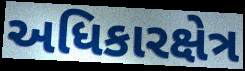
અધિકારક્ષેત્ર